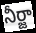
నీర్జా